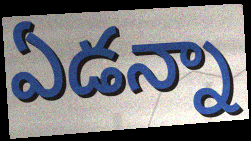
ఏడన్నా